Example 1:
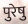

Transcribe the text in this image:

पुरेषु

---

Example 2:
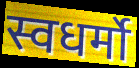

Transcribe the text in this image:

स्वधर्मो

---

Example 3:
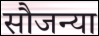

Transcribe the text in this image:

सौजन्या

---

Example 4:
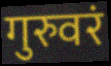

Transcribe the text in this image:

गुरुवरं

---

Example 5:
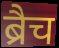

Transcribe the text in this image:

ब्रैच